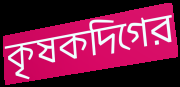
কৃষকদিগের